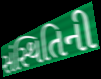
સંસ્થિતિની